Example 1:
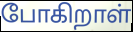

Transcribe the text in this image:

போகிறாள்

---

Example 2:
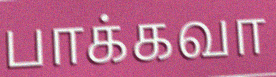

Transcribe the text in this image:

பாக்கவா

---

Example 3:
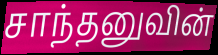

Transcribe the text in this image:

சாந்தனுவின்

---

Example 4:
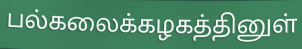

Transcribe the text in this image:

பல்கலைக்கழகத்தினுள்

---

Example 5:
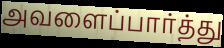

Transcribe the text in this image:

அவளைப்பார்த்து